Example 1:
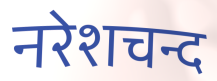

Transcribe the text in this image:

नरेशचन्द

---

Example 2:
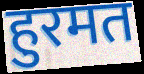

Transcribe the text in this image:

हुरमत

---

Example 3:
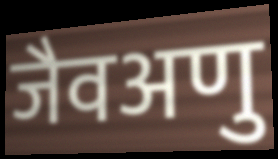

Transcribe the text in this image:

जैवअणु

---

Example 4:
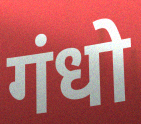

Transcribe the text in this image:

गंधो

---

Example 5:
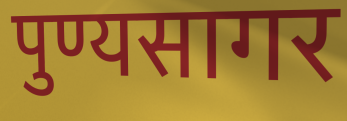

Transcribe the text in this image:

पुण्यसागर